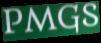
PMGS